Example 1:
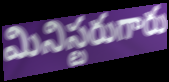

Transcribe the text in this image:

మినిస్టరుగారు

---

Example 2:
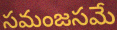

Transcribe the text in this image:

సమంజసమే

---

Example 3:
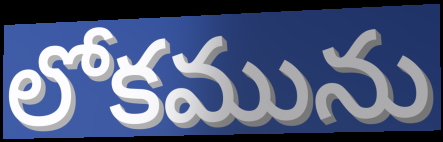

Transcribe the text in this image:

లోకమును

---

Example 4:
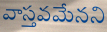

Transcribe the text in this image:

వాస్తవమేనని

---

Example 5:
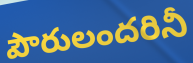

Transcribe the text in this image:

పౌరులందరినీ